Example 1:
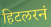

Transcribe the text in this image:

हिटलरनं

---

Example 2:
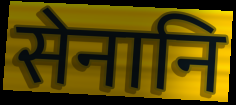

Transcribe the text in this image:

सेनानि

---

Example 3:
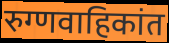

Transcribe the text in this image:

रुग्णवाहिकांत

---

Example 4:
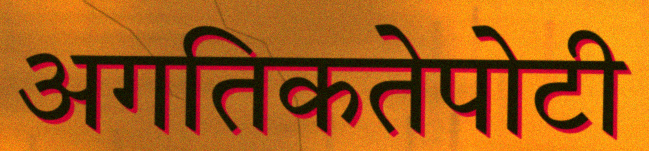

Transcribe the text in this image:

अगतिकतेपोटी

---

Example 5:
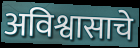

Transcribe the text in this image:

अविश्वासाचे